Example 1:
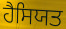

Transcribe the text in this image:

ਹੈਸਿਯਤ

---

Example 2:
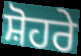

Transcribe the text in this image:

ਸ਼ੋਹਰੇ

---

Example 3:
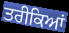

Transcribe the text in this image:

ਤਰੀਕਿਆਂ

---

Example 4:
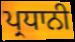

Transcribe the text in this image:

ਪ੍ਰਧਾਨੀ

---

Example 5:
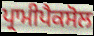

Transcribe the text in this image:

ਪ੍ਰਾਮੀਪੈਕਸੋਲ